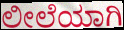
ಲೀಲೆಯಾಗಿ